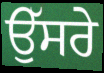
ਉੱਸਰੇ